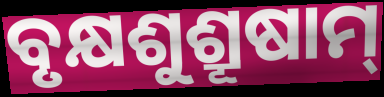
ବୃକ୍ଷଶୁଶ୍ରୂଷାମ୍